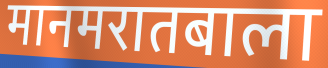
मानमरातबाला